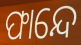
ଫାନ୍ଦେ